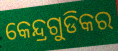
କେନ୍ଦ୍ରଗୁଡିକର